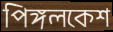
পিঙ্গলকেশ